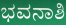
ಭವನಾಶಿ